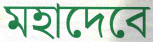
মহাদেবে